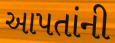
આપતાંની